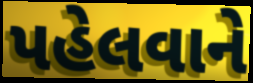
પહેલવાને